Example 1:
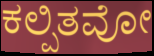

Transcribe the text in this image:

ಕಲ್ಪಿತವೋ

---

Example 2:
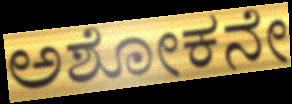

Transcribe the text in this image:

ಅಶೋಕನೇ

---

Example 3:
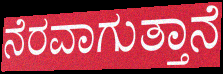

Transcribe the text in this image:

ನೆರವಾಗುತ್ತಾನೆ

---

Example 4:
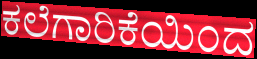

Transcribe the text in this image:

ಕಲೆಗಾರಿಕೆಯಿಂದ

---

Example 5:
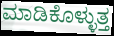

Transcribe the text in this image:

ಮಾಡಿಕೊಳ್ಳುತ್ತ